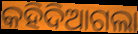
କହିଦିଆଗଲା